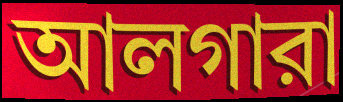
আলগারা